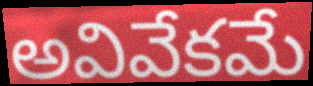
అవివేకమే